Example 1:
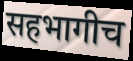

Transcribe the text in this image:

सहभागीच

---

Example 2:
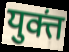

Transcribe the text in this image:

युक्तं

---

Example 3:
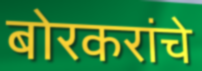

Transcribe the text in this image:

बोरकरांचे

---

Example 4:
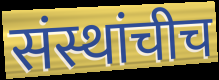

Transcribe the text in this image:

संस्थांचीच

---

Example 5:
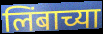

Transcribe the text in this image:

लिंबाच्या